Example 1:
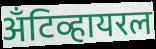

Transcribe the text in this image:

अँटिव्हायरल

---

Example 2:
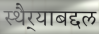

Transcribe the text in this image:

स्थैर्याबद्दल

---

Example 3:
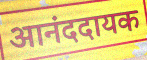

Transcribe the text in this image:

आनंददायक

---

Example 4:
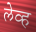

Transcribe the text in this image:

लेव्ह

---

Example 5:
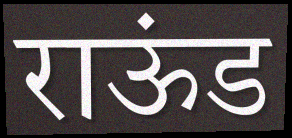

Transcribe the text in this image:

राऊंड